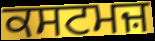
ਕਸਟਮਜ਼